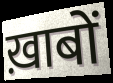
ख़ाबों